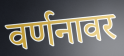
वर्णनावर